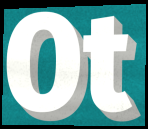
Ot